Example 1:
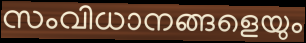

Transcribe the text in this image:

സംവിധാനങ്ങളെയും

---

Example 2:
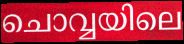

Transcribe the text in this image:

ചൊവ്വയിലെ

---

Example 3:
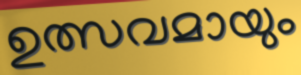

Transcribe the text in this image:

ഉത്സവമായും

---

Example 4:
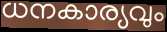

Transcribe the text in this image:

ധനകാര്യവും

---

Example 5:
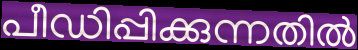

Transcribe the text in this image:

പീഡിപ്പിക്കുന്നതിൽ